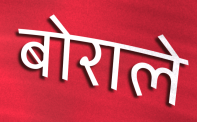
बोराले